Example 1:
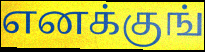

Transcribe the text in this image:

எனக்குங்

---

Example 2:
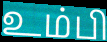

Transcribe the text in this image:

உம்பி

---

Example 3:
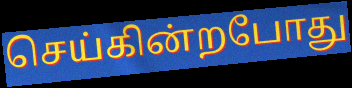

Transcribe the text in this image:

செய்கின்றபோது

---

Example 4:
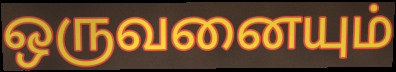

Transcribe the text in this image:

ஒருவனையும்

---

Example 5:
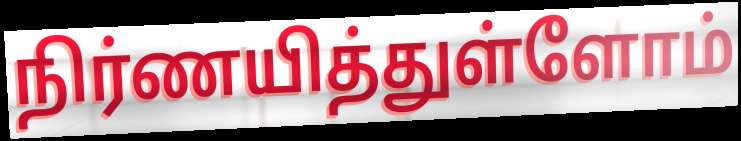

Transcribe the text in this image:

நிர்ணயித்துள்ளோம்